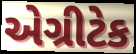
એગ્રીટેક